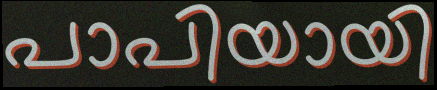
പാപിയായി